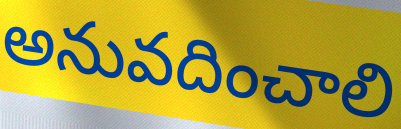
అనువదించాలి